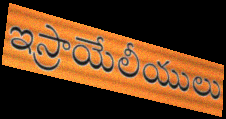
ఇస్రాయేలీయులు